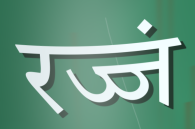
रज्जं